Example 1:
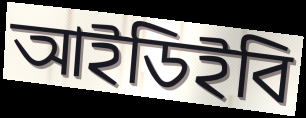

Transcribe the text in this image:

আইডিইবি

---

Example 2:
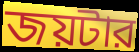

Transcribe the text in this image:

জয়টার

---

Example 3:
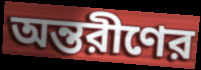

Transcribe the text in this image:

অন্তরীণের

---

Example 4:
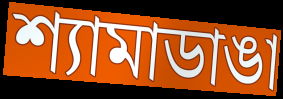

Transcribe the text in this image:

শ্যামাডাঙা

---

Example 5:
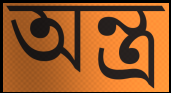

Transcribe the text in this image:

অন্ত্র